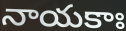
నాయకాః